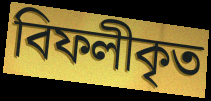
বিফলীকৃত